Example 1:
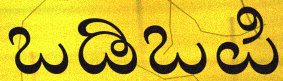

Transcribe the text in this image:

ಒಡಿಒಪಿ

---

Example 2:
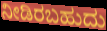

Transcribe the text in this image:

ನೀಡಿರಬಹುದು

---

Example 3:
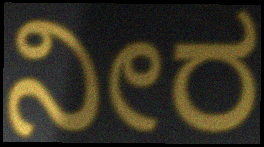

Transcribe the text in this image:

ನೀರ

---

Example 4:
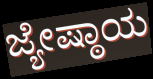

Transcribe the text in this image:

ಜ್ಯೇಷ್ಠಾಯ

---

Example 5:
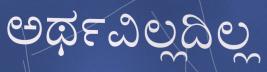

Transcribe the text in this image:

ಅರ್ಥವಿಲ್ಲದಿಲ್ಲ